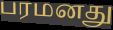
பரமனது